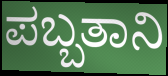
ಪಬ್ಬತಾನಿ